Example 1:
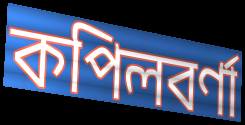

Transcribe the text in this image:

কপিলবর্ণা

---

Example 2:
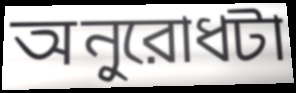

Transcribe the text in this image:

অনুরোধটা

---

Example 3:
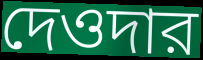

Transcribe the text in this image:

দেওদার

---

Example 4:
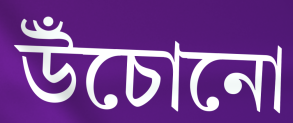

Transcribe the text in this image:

উঁচোনো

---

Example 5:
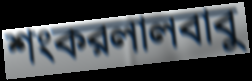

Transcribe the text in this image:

শংকরলালবাবু